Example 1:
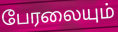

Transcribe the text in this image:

பேரலையும்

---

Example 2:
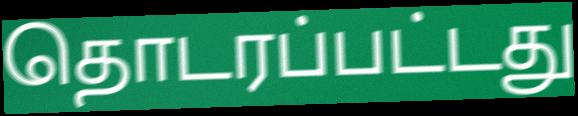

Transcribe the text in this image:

தொடரப்பட்டது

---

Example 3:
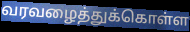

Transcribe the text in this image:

வரவழைத்துக்கொள்ள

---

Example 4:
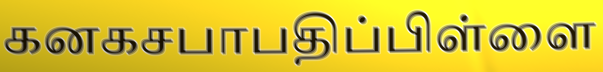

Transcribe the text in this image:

கனகசபாபதிப்பிள்ளை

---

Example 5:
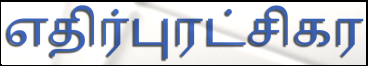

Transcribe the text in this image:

எதிர்புரட்சிகர